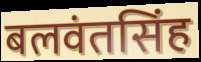
बलवंतसिंह